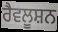
ਰੈਵਲੂਸ਼ਨ